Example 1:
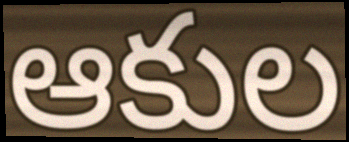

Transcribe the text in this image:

ఆకుల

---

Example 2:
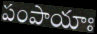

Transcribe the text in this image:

పంపాయాః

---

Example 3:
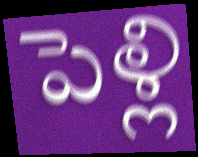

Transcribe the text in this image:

పెళ్లి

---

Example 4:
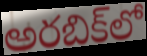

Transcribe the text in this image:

అరబిక్‌లో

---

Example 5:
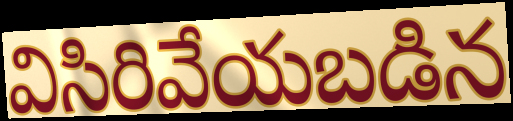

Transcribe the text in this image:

విసిరివేయబడిన